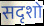
सदृशो